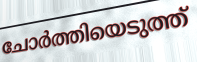
ചോർത്തിയെടുത്ത്